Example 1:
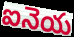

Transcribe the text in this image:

ఐనెయ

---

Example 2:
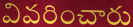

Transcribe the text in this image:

వివరించారు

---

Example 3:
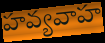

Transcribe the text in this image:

హవ్యవాహ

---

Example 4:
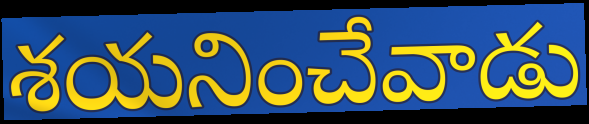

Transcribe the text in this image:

శయనించేవాడు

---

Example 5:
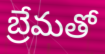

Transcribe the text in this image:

బ్రేమతో